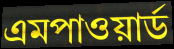
এমপাওয়ার্ড